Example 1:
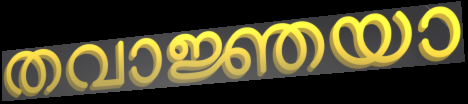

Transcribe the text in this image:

തവാജ്ഞയാ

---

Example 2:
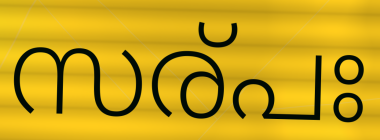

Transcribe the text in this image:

സര്പഃ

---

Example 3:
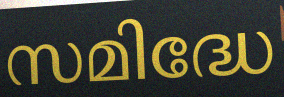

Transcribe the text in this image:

സമിദ്ധേ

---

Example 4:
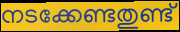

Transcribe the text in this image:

നടക്കേണ്ടതുണ്ട്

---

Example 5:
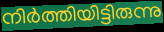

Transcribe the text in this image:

നിർത്തിയിട്ടിരുന്നു